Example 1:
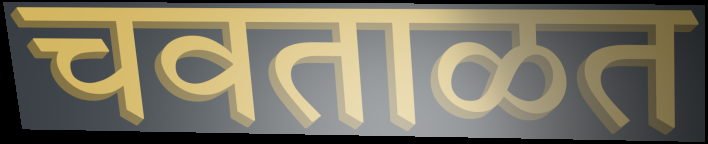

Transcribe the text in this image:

चवताळत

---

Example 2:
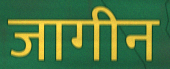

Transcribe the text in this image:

जागीन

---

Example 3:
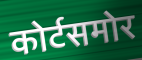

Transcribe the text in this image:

कोर्टसमोर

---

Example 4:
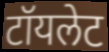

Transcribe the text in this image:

टॉयलेट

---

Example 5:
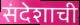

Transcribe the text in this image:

संदेशाची